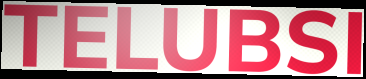
TELUBSI